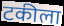
टकीला